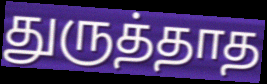
துருத்தாத